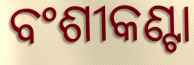
ବଂଶୀକଣ୍ଟା